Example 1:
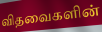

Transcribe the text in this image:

விதவைகளின்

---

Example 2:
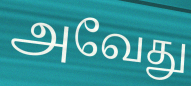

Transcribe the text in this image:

அவேது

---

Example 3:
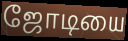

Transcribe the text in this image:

ஜோடியை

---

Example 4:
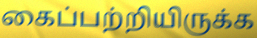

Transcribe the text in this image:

கைப்பற்றியிருக்க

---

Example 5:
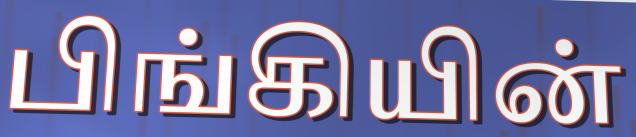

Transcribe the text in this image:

பிங்கியின்